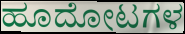
ಹೂದೋಟಗಳ